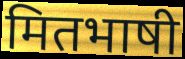
मितभाषी